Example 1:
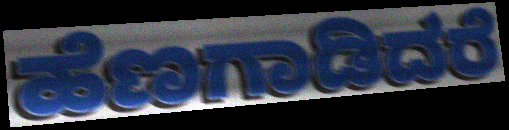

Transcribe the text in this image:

ಹೆಣಗಾಡಿದರೆ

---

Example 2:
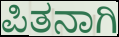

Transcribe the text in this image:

ಪಿತನಾಗಿ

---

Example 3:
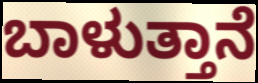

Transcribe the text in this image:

ಬಾಳುತ್ತಾನೆ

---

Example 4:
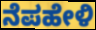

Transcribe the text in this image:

ನೆಪಹೇಳಿ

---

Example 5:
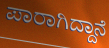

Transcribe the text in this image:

ಪಾರಾಗಿದ್ದಾನೆ